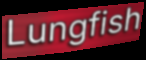
Lungfish